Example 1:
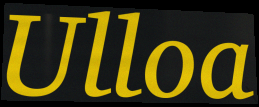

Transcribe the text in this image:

Ulloa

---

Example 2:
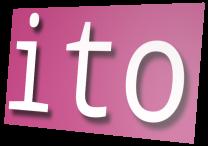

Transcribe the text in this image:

ito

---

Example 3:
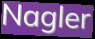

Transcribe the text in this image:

Nagler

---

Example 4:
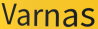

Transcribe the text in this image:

Varnas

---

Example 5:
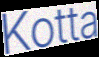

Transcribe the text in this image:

Kotta